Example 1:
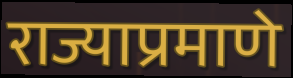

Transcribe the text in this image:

राज्याप्रमाणे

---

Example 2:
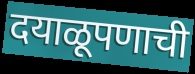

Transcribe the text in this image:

दयाळूपणाची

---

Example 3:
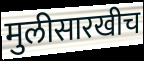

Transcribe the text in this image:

मुलीसारखीच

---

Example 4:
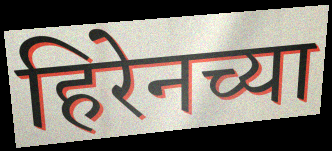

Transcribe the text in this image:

हिरेनच्या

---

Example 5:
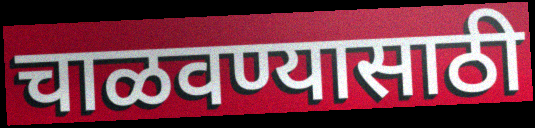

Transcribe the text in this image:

चाळवण्यासाठी